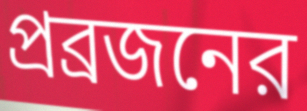
প্রব্রজনের